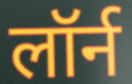
लॉर्न